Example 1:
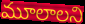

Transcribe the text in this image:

మూలాలని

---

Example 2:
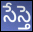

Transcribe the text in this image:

సేస్తె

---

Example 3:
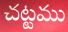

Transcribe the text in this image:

చట్టము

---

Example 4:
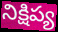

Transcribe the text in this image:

నిక్షిప్య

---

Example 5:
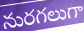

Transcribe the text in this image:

నురగలుగా